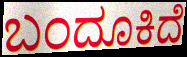
ಬಂದೂಕಿದೆ